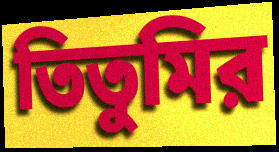
তিতুমির